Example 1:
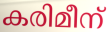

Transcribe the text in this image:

കരിമീന്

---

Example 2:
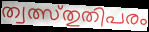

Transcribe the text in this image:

ത്വത്സ്തുതിപരം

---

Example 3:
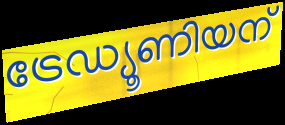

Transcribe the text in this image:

ട്രേഡ്യൂണിയന്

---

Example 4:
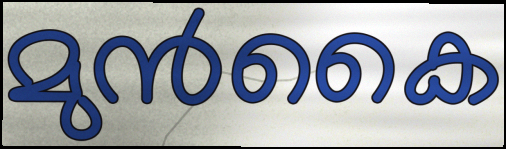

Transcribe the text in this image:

മുൻകൈ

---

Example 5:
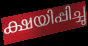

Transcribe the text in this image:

ക്ഷയിപ്പിച്ചു